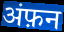
अंफ़न